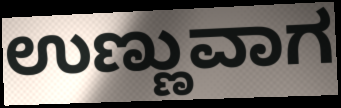
ಉಣ್ಣುವಾಗ